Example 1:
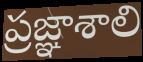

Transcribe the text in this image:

ప్రజ్ఞాశాలి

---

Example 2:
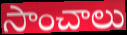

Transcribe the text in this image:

సాంచాలు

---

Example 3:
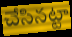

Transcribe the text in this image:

చేసినట్టా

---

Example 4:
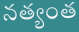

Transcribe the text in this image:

నత్యంత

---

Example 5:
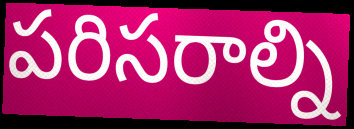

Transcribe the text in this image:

పరిసరాల్ని